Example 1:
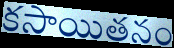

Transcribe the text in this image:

కసాయితనం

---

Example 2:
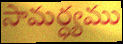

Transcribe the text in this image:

సామర్ధ్యము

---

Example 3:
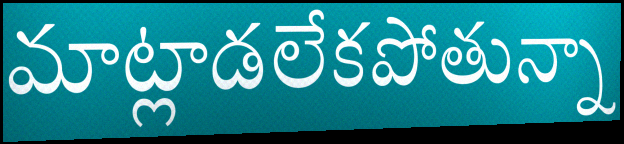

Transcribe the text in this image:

మాట్లాడలేకపోతున్నా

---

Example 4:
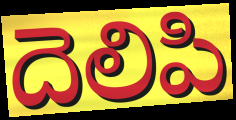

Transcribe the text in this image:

దెలిపి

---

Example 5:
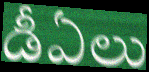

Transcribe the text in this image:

డీఏలు